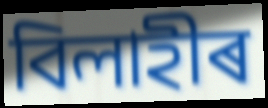
বিলাহীৰ